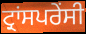
ਟ੍ਰਾਂਸਪਰੇਂਸੀ